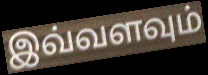
இவ்வளவும்